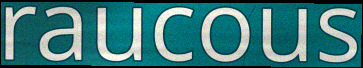
raucous